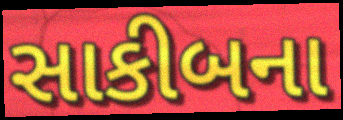
સાકીબના